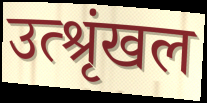
उत्श्रृंखल